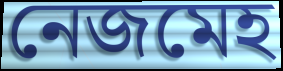
নেজমেহ